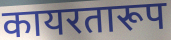
कायरतारूप